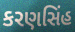
કરણસિંહ